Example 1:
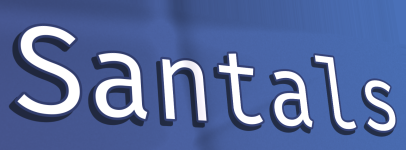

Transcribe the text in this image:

Santals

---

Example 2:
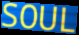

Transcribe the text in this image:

SOUL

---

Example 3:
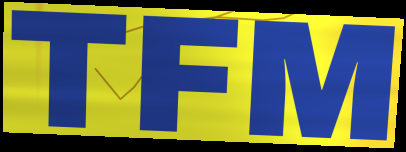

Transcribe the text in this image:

TFM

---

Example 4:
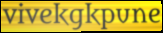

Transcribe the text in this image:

vivekgkpune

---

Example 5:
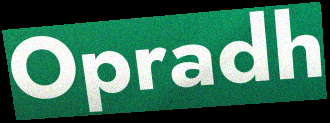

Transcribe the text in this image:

Opradh